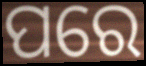
ପରେ